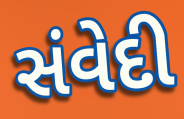
સંવેદી